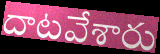
దాటవేశారు